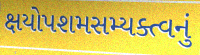
ક્ષયોપશમસમ્યક્ત્વનું